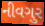
નીવગુર